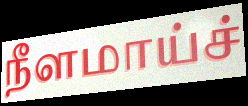
நீளமாய்ச்